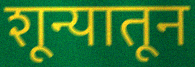
शून्यातून